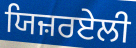
ਯਿਜ਼ਰਏਲੀ